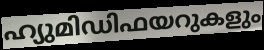
ഹ്യുമിഡിഫയറുകളും